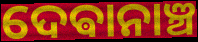
ଦେଵାନାଞ୍ଚ